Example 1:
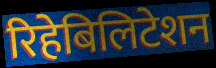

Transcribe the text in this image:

रिहेबिलिटेशन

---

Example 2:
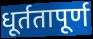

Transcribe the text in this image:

धूर्ततापूर्ण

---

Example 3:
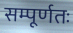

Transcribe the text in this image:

सम्पूर्णतः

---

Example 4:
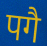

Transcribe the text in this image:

पगै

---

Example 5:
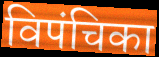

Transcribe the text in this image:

विपंचिका